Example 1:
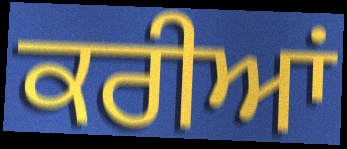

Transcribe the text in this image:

ਕਰੀਆਂ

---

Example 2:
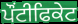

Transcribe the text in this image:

ਪੌਂਟੀਫਿਕੇਟ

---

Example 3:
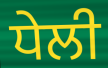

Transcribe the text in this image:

ਧੇਲੀ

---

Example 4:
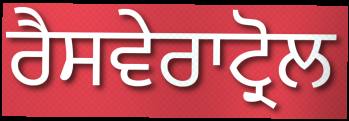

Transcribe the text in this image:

ਰੈਸਵੇਰਾਟ੍ਰੋਲ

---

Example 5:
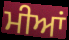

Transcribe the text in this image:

ਮੀਆਂ